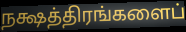
நக்ஷத்திரங்களைப்